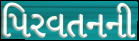
પિરવતનની